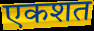
एकशत